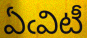
ఏఁవిటీ